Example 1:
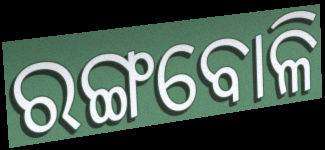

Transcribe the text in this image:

ରଙ୍ଗବୋଳି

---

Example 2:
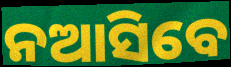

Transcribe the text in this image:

ନଆସିବେ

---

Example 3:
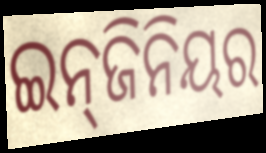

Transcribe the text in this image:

ଇନ୍‌ଜିନିୟର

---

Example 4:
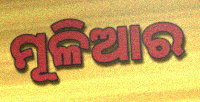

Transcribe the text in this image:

ମୂଳିଆର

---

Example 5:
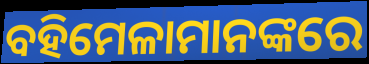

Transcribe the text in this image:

ବହିମେଳାମାନଙ୍କରେ